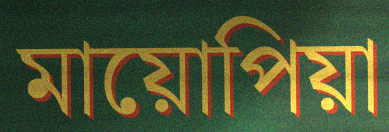
মায়োপিয়া